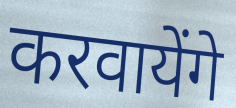
करवायेंगे